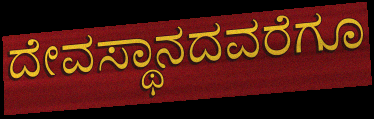
ದೇವಸ್ಥಾನದವರೆಗೂ